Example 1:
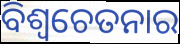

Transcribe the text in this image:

ବିଶ୍ଵଚେତନାର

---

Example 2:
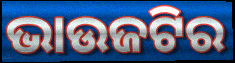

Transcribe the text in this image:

ଭାଉଜଟିର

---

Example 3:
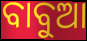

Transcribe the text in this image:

ବାବୁଆ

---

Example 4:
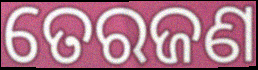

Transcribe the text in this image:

ତେରଜଣ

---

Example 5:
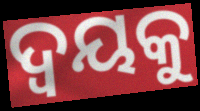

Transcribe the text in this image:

ଦ୍ଵୟକୁ